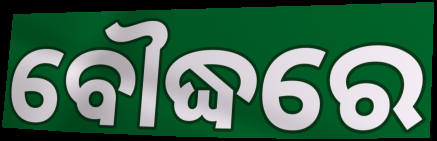
ବୌଦ୍ଧରେ